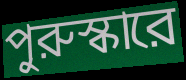
পুরুস্কারে